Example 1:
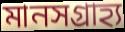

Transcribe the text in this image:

মানসগ্রাহ্য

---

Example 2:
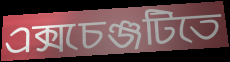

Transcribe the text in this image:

এক্সচেঞ্জটিতে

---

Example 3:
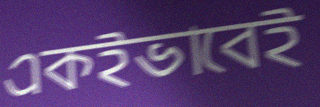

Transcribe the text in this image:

একইভাবেই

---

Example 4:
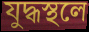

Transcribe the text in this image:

যুদ্ধস্থলে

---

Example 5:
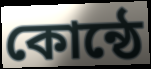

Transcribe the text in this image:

কোন্ঠে